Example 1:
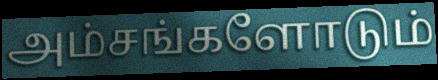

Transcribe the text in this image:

அம்சங்களோடும்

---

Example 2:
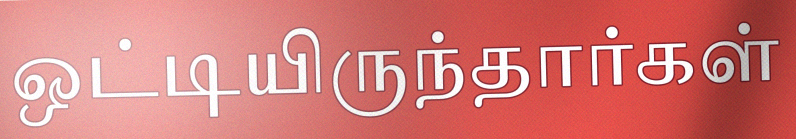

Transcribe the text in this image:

ஒட்டியிருந்தார்கள்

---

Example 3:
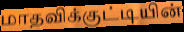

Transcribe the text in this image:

மாதவிக்குட்டியின்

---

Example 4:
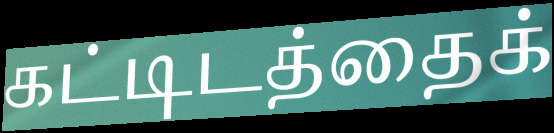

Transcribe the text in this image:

கட்டிடத்தைக்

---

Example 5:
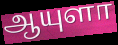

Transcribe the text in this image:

ஆயுளா